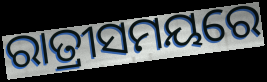
ରାତ୍ରୀସମୟରେ